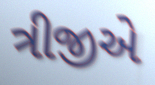
ત્રીજીએ